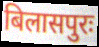
बिलासपुरः